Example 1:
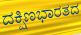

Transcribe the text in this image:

ದಕ್ಷಿಣಭಾರತದ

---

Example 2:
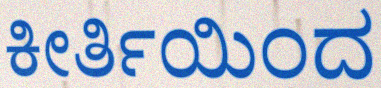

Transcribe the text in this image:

ಕೀರ್ತಿಯಿಂದ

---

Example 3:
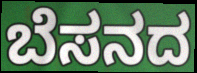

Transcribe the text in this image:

ಬೆಸನದ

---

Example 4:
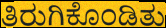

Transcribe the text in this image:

ತಿರುಗಿಕೊಂಡಿತು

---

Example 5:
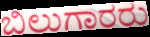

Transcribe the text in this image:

ಬಿಲುಗಾರರು